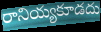
రానియ్యకూడదు